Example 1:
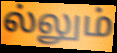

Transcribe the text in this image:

ல்லும்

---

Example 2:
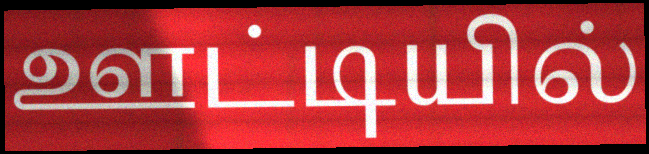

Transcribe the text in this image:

ஊட்டியில்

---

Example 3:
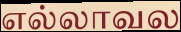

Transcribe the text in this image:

எல்லாவல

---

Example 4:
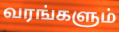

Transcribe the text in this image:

வரங்களும்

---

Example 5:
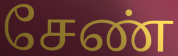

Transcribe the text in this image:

சேண்